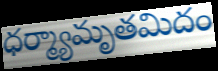
ధర్మ్యామృతమిదం